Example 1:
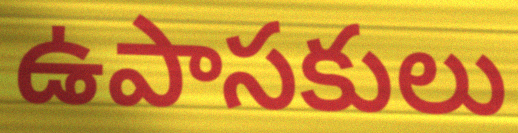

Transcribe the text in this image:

ఉపాసకులు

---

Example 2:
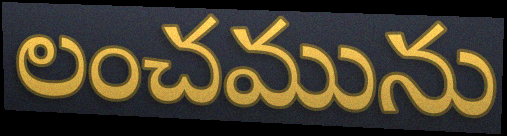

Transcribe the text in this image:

లంచమును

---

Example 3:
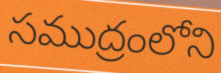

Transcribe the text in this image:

సముద్రంలోని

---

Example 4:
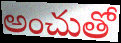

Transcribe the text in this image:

అంచుతో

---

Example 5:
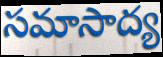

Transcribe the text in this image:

సమాసాద్య